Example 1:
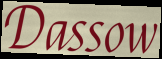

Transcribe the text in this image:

Dassow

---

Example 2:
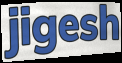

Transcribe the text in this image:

jigesh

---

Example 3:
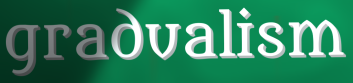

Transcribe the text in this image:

gradualism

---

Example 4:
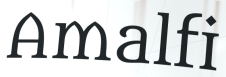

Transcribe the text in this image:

Amalfi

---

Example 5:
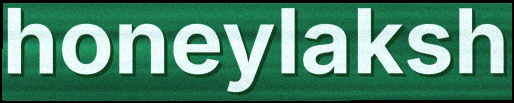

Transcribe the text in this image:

honeylaksh